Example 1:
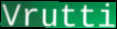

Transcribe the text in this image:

Vrutti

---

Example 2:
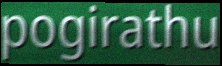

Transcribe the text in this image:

pogirathu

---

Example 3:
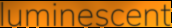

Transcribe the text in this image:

luminescent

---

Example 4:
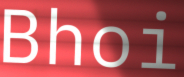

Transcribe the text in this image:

Bhoi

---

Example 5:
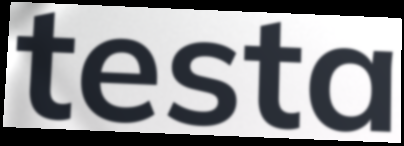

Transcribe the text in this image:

testa